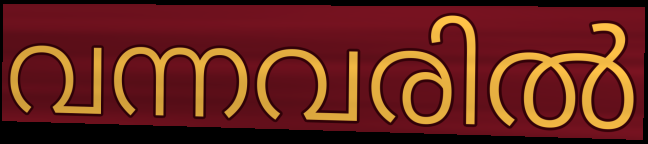
വന്നവരിൽ